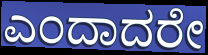
ಎಂದಾದರೇ